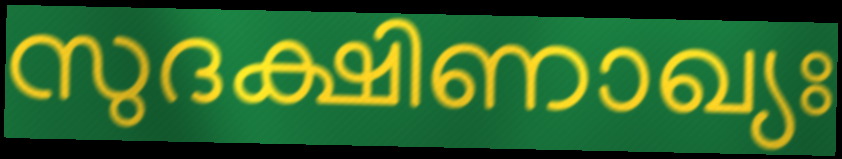
സുദക്ഷിണാഖ്യഃ